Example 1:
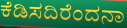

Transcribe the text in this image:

ಕೆಡಿಸದಿರೆಂದನಾ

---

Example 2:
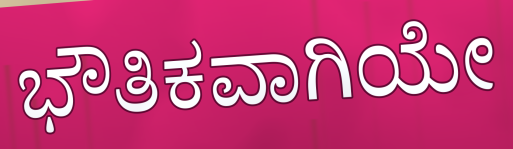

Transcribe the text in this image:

ಭೌತಿಕವಾಗಿಯೇ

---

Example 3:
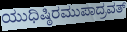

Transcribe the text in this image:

ಯುಧಿಷ್ಠಿರಮುಪಾದ್ರವತ್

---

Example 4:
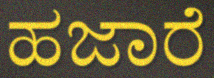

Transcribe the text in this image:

ಹಜಾರೆ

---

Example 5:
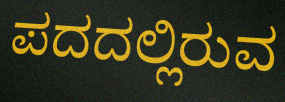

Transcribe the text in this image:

ಪದದಲ್ಲಿರುವ